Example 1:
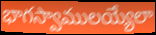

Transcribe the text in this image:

భాగస్వాములయ్యేలా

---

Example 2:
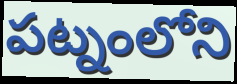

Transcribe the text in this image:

పట్నంలోని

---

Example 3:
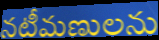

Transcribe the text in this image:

నటీమణులను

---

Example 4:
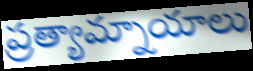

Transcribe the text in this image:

ప్రత్యామ్నాయాలు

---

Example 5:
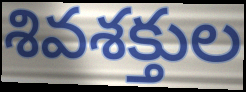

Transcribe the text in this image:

శివశక్తుల